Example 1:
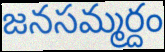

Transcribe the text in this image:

జనసమ్మర్దం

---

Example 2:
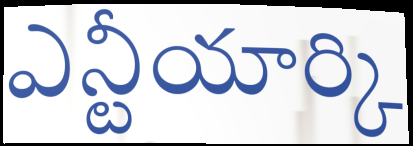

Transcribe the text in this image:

ఎన్టీయార్కి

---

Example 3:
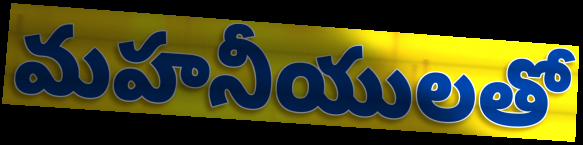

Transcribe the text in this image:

మహనీయులతో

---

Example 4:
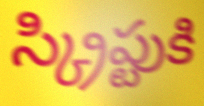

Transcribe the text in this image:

స్క్రిప్టుకి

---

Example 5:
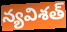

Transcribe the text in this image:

న్యవిశత్